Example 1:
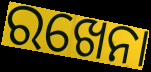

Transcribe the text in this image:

ରଖେନା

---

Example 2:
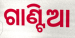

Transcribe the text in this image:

ଗାଣ୍ଟିଆ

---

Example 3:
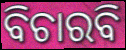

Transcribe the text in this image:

ବିଚାରବି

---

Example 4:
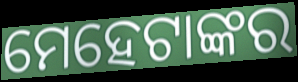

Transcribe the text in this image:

ମେହେଟାଙ୍କର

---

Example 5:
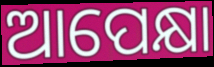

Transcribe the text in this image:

ଆପେକ୍ଷା